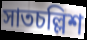
সাতচল্লিশ